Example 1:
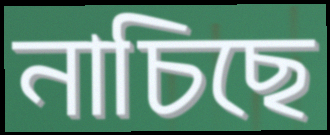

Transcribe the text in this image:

নাচিছে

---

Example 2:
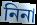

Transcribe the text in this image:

নিনা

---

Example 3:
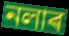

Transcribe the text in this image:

নলাৰ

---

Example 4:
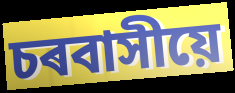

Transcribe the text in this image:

চৰবাসীয়ে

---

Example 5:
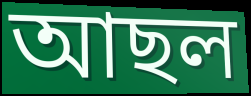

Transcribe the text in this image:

আছল